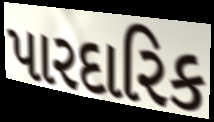
પારદારિક